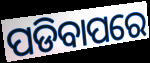
ପଡିବାପରେ